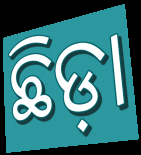
ଛିଡ଼ା